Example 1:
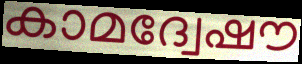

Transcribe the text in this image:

കാമദ്വേഷൗ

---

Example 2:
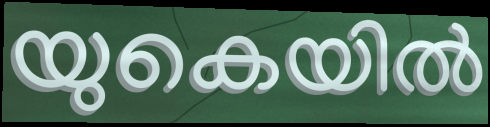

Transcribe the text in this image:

യുകെയിൽ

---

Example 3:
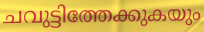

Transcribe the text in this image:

ചവുട്ടിത്തേക്കുകയും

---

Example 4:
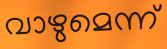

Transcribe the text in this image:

വാഴുമെന്ന്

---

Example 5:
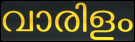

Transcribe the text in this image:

വാരിളം